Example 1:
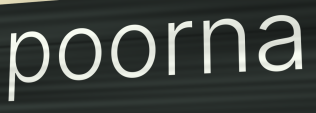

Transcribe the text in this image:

poorna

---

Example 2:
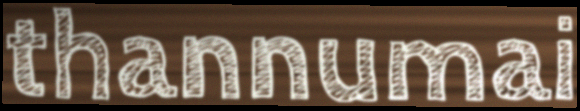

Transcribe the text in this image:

thannumai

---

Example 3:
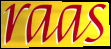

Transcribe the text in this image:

raas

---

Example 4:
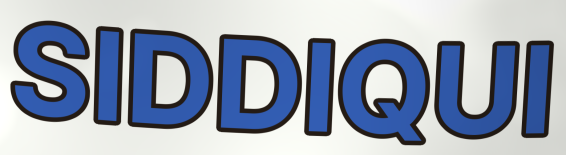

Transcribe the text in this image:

SIDDIQUI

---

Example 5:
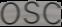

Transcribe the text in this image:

osc